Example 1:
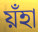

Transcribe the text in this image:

য়ঁহা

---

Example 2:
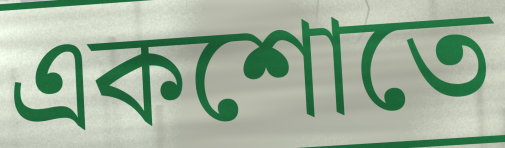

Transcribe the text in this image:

একশোতে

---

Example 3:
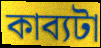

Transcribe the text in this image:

কাব্যটা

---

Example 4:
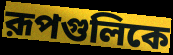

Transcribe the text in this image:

রূপগুলিকে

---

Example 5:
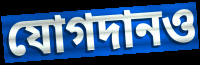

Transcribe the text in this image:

যোগদানও